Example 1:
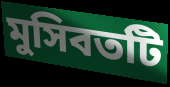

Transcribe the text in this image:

মুসিবতটি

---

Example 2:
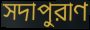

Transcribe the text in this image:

সদাপুরাণ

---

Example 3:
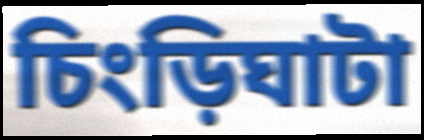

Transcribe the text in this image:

চিংড়িঘাটা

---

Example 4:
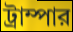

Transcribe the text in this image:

ট্রাম্পার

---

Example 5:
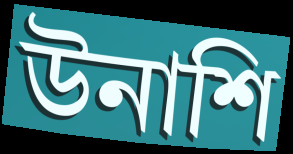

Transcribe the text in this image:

উনাশি